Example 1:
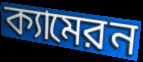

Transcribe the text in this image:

ক্যামেরন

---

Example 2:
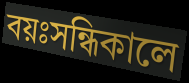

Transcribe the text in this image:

বয়ঃসন্ধিকালে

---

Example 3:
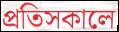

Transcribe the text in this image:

প্রতিসকালে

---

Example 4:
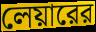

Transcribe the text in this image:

লেয়ারের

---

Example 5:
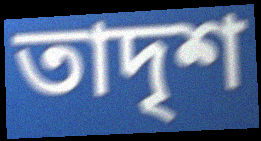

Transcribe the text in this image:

তাদৃশ